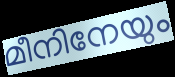
മീനിനേയും